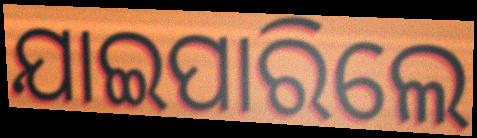
ଯାଇପାରିଲେ